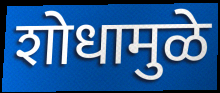
शोधामुळे